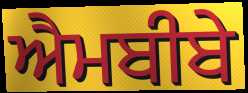
ਐਮਬੀਬੇ